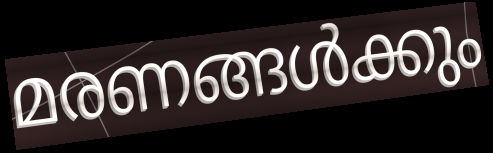
മരണങ്ങൾക്കും